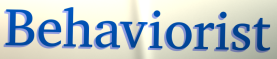
Behaviorist